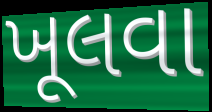
ખૂલવા